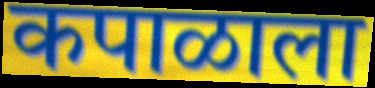
कपाळाला